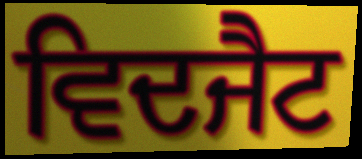
ਵਿਦਜੈਟ